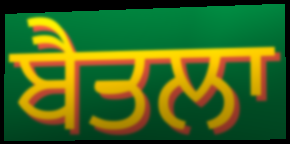
ਬੈਤਲਾ